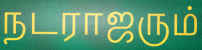
நடராஜரும்